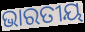
ଭାରତୀୟ